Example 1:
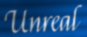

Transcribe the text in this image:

Unreal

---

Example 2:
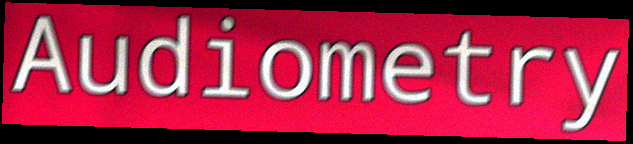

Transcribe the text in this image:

Audiometry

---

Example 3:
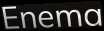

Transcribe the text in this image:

Enema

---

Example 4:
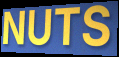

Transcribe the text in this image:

NUTS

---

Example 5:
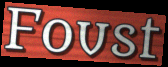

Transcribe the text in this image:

Foust